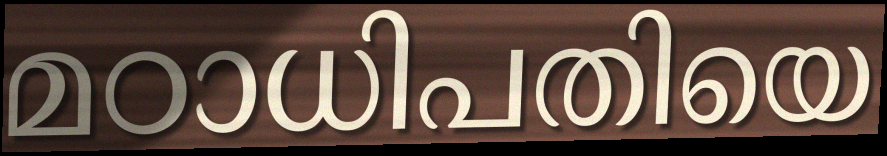
മഠാധിപതിയെ